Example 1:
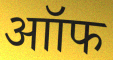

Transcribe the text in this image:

आॉफ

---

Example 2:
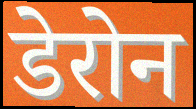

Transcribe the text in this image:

डेरोन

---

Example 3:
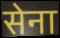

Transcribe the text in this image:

सेना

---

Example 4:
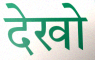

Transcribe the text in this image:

देखो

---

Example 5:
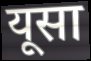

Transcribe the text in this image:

यूसा